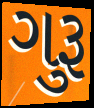
ગુરૂ